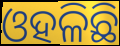
ଓହଳିଛି